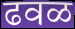
ढवळ